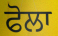
ਫੋਲਾ